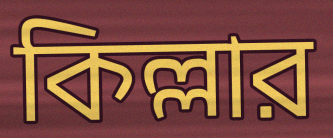
কিল্লার